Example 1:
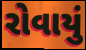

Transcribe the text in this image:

રોવાયું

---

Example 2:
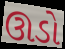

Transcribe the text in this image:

ઊડો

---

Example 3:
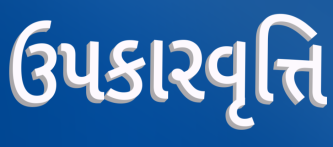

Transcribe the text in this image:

ઉપકારવૃત્તિ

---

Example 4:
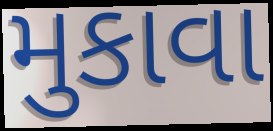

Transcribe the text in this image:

મુકાવા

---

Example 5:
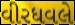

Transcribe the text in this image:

વીરધવલે